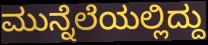
ಮುನ್ನೆಲೆಯಲ್ಲಿದ್ದು